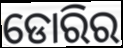
ଡୋରିର